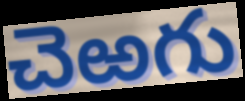
చెఱగు